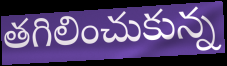
తగిలించుకున్న